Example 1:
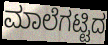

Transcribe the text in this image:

ಮಾಲೆಗಟ್ಟಿದ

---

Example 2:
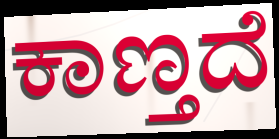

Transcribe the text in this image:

ಕಾಣ್ತದೆ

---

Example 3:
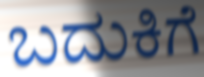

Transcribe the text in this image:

ಬದುಕಿಗೆ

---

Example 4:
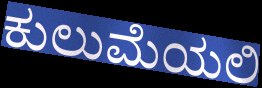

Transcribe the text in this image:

ಕುಲುಮೆಯಲಿ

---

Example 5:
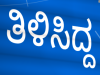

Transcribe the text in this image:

ತಿಳಿಸಿದ್ದ